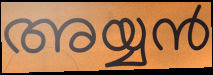
അയ്യൻ